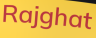
Rajghat